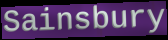
Sainsbury